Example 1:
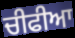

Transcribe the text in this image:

ਚੀਫੀਆ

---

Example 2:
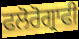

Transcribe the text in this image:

ਫਲੋਰੋਗ੍ਰਾਫੀ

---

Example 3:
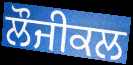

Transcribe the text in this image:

ਲੌਜੀਕਲ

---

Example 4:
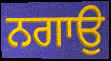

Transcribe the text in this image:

ਨਗਾਉ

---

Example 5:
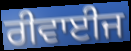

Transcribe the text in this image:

ਰੀਵਾਈਜ